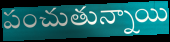
పంచుతున్నాయి